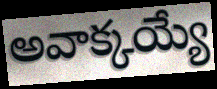
అవాక్కయ్యే